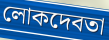
লোকদেবতা